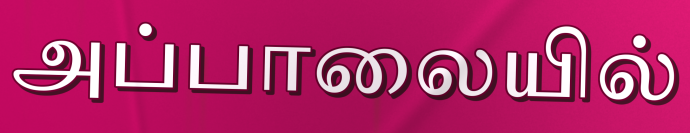
அப்பாலையில்